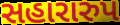
સહારારુપ